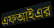
এফআইএর